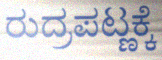
ರುದ್ರಪಟ್ಣಕ್ಕೆ